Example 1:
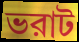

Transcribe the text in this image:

ভরাট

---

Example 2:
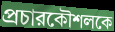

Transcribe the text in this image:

প্রচারকৌশলকে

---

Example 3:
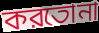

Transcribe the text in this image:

করতোনা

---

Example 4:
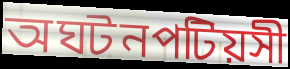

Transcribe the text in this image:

অঘটনপটিয়সী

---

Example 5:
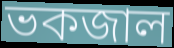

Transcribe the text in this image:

ভকজাল